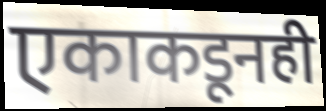
एकाकडूनही